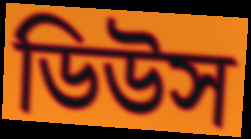
ডিউস